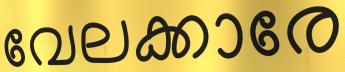
വേലക്കാരേ